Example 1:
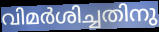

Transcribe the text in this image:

വിമർശിച്ചതിനു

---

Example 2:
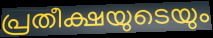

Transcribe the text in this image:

പ്രതീക്ഷയുടെയും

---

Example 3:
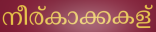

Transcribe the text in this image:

നീര്കാക്കകള്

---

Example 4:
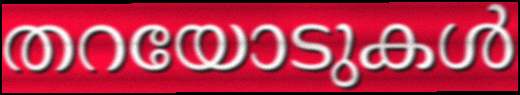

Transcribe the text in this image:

തറയോടുകൾ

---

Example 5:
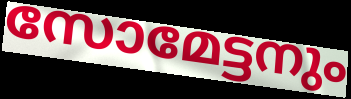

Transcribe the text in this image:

സോമേട്ടനും